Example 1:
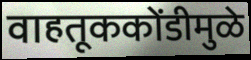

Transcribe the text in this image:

वाहतूककोंडीमुळे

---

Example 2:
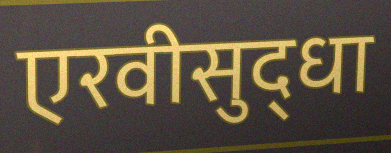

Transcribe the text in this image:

एरवीसुद्धा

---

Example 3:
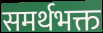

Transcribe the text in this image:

समर्थभक्त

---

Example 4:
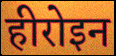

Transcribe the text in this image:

हीरोइन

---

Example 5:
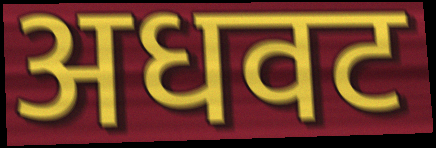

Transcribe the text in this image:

अधवट